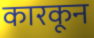
कारकून